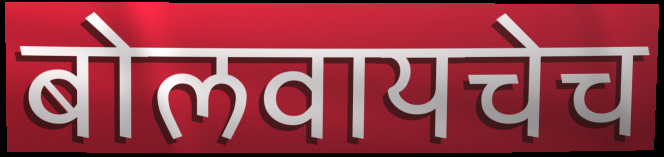
बोलवायचेच